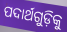
ପଦାର୍ଥଗୁଡ଼ିକୁ